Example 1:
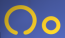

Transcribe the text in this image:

റം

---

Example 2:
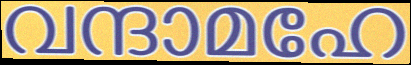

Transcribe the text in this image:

വന്ദാമഹേ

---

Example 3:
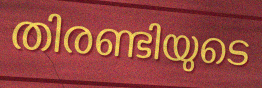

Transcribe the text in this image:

തിരണ്ടിയുടെ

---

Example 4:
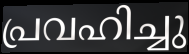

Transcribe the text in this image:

പ്രവഹിച്ചു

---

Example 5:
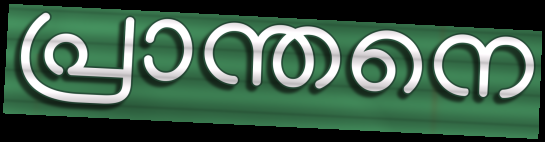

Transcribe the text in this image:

പ്രാന്തനെ